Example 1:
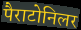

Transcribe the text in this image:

पैराटोनिलर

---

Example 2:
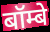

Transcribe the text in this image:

बॉम्बे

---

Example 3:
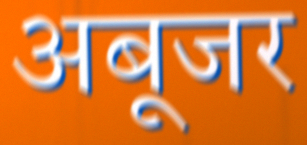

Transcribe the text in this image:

अबूजर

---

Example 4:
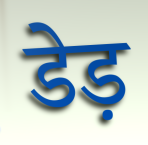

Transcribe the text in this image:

डेड़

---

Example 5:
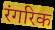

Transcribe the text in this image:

रंगरिक